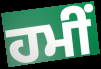
ਹਮੀਂ